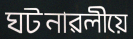
ঘটনাৱলীয়ে